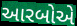
આરબોએ